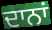
ਦਾਨਾਂ